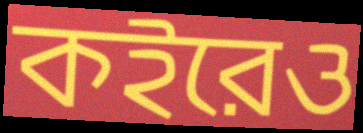
কইরেও